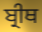
ਬ੍ਰੀਥ